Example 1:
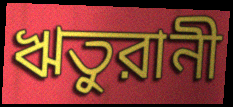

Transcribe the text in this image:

ঋতুরানী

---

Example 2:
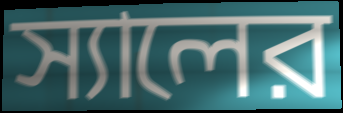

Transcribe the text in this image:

স্যালের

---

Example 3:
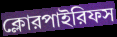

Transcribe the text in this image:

ক্লোরপাইরিফস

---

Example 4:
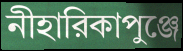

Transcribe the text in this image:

নীহারিকাপুঞ্জে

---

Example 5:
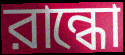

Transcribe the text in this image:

রান্ধো